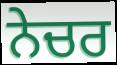
ਨੇਚਰ